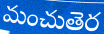
మంచుతెర